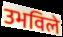
उभविले